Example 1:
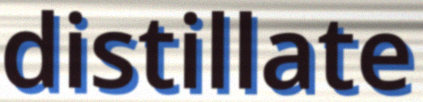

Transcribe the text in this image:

distillate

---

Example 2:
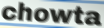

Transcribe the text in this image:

chowta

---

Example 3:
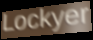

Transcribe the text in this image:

Lockyer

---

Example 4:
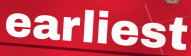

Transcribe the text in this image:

earliest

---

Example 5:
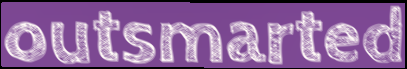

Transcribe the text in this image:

outsmarted